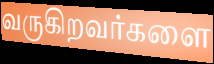
வருகிறவர்களை